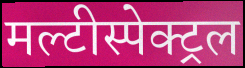
मल्टीस्पेक्ट्रल